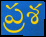
ప్రశ